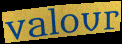
valour